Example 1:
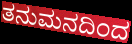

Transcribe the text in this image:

ತನುಮನದಿಂದ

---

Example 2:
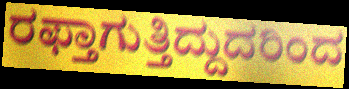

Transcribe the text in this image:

ರಫ್ತಾಗುತ್ತಿದ್ದುದರಿಂದ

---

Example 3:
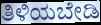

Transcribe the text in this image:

ತಿಳಿಯಬೇಡಿ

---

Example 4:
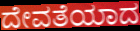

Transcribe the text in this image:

ದೇವತೆಯಾದ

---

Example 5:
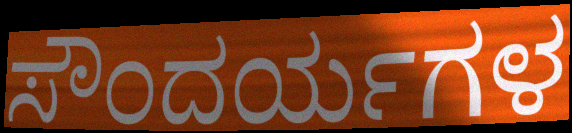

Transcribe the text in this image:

ಸೌಂದರ್ಯಗಳ